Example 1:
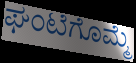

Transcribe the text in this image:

ಘಂಟೆಗೊಮ್ಮೆ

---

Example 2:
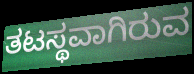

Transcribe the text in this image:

ತಟಸ್ಥವಾಗಿರುವ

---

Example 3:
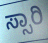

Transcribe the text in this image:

ಸ್ಸಾರಿ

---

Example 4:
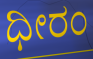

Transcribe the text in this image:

ಧೀರಂ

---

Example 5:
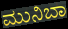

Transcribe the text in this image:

ಮುನಿಬಾ